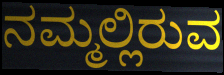
ನಮ್ಮಲ್ಲಿರುವ